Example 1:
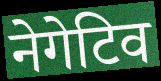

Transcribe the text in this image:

नेगेटिव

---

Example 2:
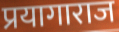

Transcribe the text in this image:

प्रयागाराज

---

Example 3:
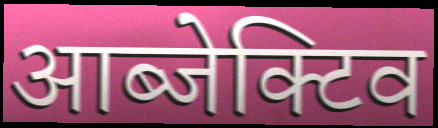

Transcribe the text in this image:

आब्जेक्टिव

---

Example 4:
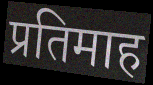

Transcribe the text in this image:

प्रतिमाह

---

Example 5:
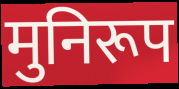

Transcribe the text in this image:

मुनिरूप